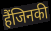
हैंजिनकी